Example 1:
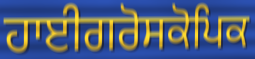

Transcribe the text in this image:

ਹਾਈਗਰੋਸਕੋਪਿਕ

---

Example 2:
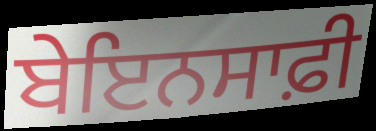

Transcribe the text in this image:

ਬੇਇਨਸਾਫ਼ੀ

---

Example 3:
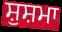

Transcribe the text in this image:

ਸ਼ੁਸ਼ਮਾ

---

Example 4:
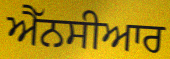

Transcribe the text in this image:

ਐੱਨਸੀਆਰ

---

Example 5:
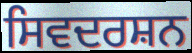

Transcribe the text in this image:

ਸਿਵਦਰਸ਼ਨ